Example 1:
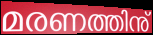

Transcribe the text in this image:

മരണത്തിനു്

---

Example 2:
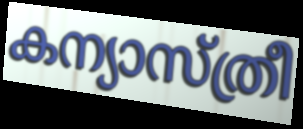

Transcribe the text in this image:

കന്യാസ്ത്രീ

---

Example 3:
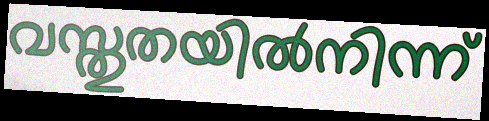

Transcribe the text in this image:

വസ്തുതയിൽനിന്ന്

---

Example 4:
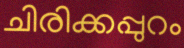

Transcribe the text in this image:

ചിരിക്കപ്പുറം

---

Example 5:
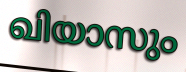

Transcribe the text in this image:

ഖിയാസും